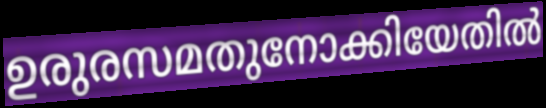
ഉരുരസമതുനോക്കിയേതിൽ